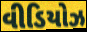
વીડિયોઝ